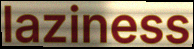
laziness